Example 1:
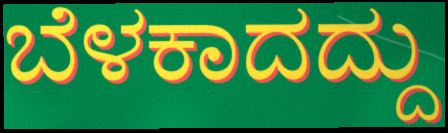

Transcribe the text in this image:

ಬೆಳಕಾದದ್ದು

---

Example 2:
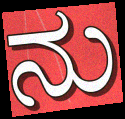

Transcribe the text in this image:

ನು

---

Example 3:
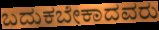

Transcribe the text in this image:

ಬದುಕಬೇಕಾದವರು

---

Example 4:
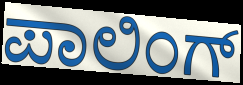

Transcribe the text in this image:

ಪಾಲಿಂಗ್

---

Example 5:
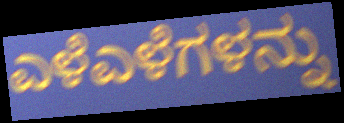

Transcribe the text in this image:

ಎಳೆಎಳೆಗಳನ್ನು